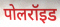
पोलरॉइड